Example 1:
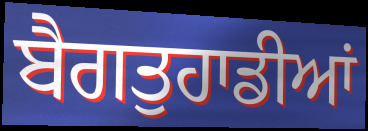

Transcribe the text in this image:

ਬੈਗਤੁਹਾਡੀਆਂ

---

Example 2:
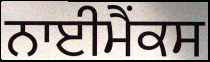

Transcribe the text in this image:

ਨਾਈਮੈਂਕਸ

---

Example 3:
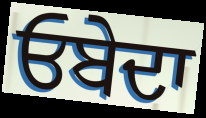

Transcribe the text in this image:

ਓਬੇਦਾ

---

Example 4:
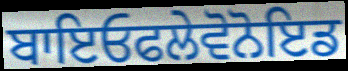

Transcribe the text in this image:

ਬਾਇਓਫਲੇਵੋਨੋਇਡ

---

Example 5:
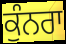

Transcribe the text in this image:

ਕੁੰਨਰਾ